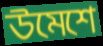
উমেশে